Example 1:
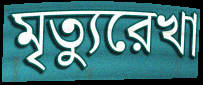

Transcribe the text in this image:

মৃত্যুরেখা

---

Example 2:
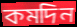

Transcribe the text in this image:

কমদিন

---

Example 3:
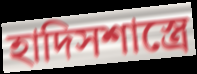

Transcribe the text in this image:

হাদিসশাস্ত্রে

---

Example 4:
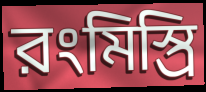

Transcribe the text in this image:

রংমিস্ত্রি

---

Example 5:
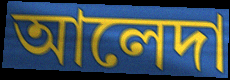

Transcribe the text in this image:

আলেদা